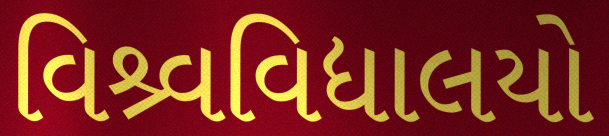
વિશ્ર્વવિદ્યાલયો